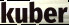
kuber